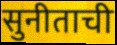
सुनीताची